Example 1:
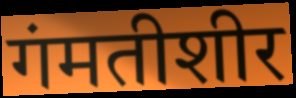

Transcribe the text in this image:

गंमतीशीर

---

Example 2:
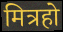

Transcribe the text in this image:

मित्रहो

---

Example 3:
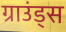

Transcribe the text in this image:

ग्राउंड्स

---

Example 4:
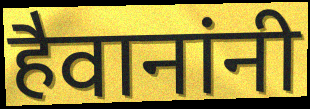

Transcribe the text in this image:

हैवानांनी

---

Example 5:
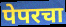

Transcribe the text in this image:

पेपरचा